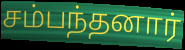
சம்பந்தனார்